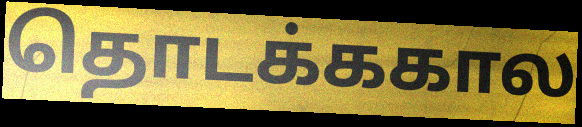
தொடக்ககால